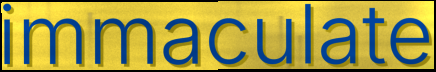
immaculate